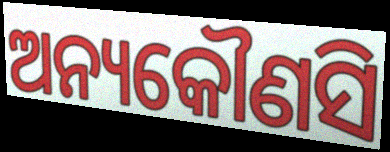
ଅନ୍ୟକୌଣସି